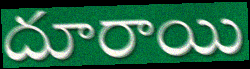
దూరాయి